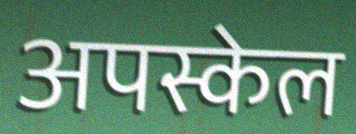
अपस्केल